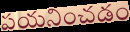
పయనించడం